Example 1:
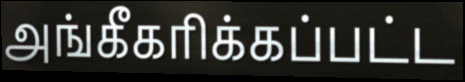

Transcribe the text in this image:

அங்கீகரிக்கப்பட்ட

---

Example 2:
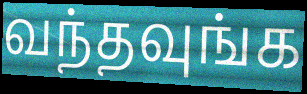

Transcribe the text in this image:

வந்தவுங்க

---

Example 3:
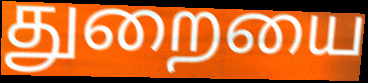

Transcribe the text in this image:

துறையை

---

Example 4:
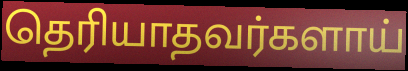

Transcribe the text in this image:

தெரியாதவர்களாய்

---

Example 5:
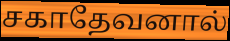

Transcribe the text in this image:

சகாதேவனால்